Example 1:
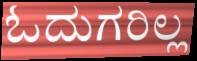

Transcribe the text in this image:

ಓದುಗರಿಲ್ಲ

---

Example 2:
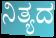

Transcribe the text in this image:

ನಿತ್ಯದ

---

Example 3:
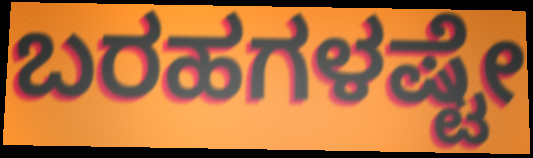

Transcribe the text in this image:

ಬರಹಗಳಷ್ಟೇ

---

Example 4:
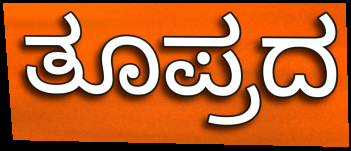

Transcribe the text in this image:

ತೂಪ್ರದ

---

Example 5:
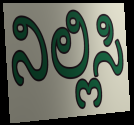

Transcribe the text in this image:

ನಿಲ್ಲಿಸಿ